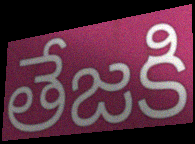
తేజకి